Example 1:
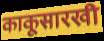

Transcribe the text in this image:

काकूसारखी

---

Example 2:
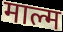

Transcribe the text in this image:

माल्म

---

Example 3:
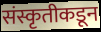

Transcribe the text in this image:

संस्कृतीकडून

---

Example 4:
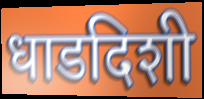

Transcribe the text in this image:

धाडदिशी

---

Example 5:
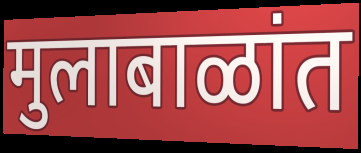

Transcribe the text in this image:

मुलाबाळांत